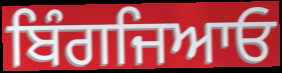
ਬਿੰਗਜਿਆਓ